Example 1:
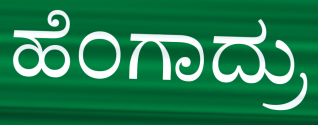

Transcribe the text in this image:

ಹೆಂಗಾದ್ರು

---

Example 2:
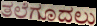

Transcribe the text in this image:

ತಲೆಗೂದಲು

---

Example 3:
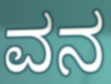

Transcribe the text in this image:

ವನ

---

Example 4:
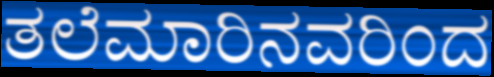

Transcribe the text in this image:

ತಲೆಮಾರಿನವರಿಂದ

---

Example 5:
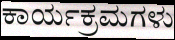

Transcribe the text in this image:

ಕಾರ್ಯಕ್ರಮಗಳು